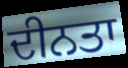
ਦੀਨਤਾ